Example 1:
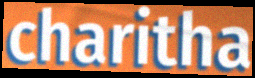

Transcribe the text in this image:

charitha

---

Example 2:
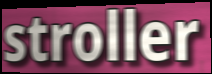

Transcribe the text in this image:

stroller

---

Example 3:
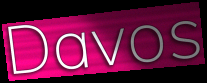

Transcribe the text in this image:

Davos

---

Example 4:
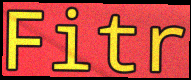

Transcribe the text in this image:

Fitr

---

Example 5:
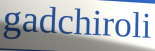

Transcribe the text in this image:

gadchiroli